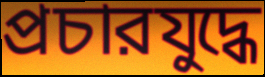
প্রচারযুদ্ধে